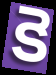
కె